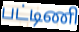
பட்டிணி